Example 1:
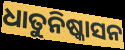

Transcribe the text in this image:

ଧାତୁନିଷ୍କାସନ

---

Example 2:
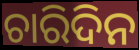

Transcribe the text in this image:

ଚାରିଦିନ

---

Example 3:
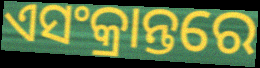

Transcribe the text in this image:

ଏସଂକ୍ରାନ୍ତରେ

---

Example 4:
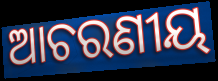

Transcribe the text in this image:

ଆଚରଣୀୟ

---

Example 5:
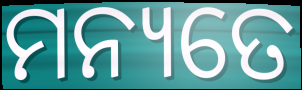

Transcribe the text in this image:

ମନ୍ୟତେ